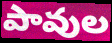
పావుల